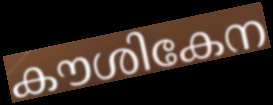
കൗശികേന